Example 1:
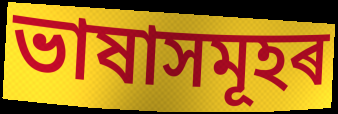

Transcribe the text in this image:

ভাষাসমূহৰ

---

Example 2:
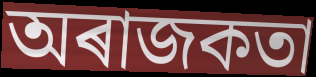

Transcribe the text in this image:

অৰাজকতা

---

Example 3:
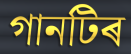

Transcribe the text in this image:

গানটিৰ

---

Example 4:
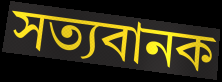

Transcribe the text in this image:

সত্যবানক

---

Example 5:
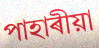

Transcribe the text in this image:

পাহাৰীয়া